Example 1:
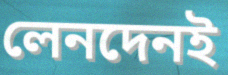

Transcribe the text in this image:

লেনদেনই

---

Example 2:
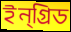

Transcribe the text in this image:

ইন্‌গ্রিড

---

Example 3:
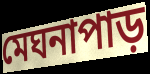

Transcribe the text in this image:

মেঘনাপাড়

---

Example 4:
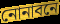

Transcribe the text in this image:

নোনাবনে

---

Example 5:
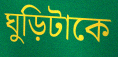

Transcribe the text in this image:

ঘুড়িটাকে